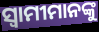
ସ୍ଵାମୀମାନଙ୍କୁ